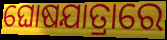
ଘୋଷଯାତ୍ରାରେ